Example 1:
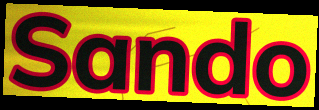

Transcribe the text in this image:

Sando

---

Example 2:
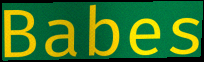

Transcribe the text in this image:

Babes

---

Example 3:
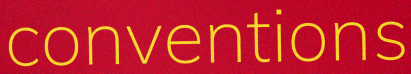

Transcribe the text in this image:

conventions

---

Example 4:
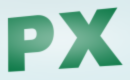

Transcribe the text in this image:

PX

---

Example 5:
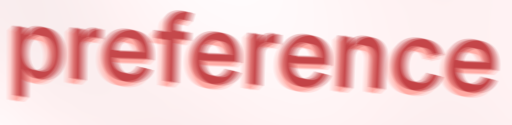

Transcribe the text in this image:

preference